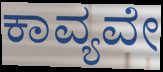
ಕಾವ್ಯವೇ